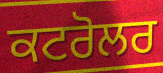
ਕਟਰੋਲਰ